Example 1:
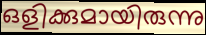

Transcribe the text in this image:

ഒളിക്കുമായിരുന്നു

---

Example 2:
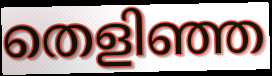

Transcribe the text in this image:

തെളിഞ്ഞ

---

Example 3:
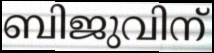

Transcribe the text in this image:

ബിജുവിന്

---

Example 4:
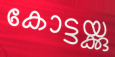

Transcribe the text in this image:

കോട്ടയ്ക്കു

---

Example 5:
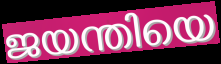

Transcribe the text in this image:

ജയന്തിയെ